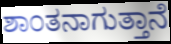
ಶಾಂತನಾಗುತ್ತಾನೆ